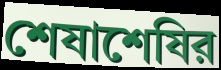
শেষাশেষির